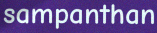
sampanthan